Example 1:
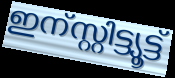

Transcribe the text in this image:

ഇന്സ്റ്റിട്ട്യൂട്ട്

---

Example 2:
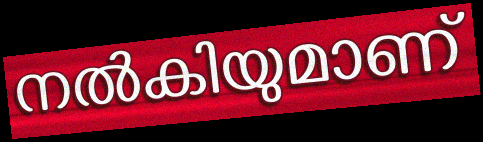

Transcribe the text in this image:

നൽകിയുമാണ്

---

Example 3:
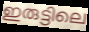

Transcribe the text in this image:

ഇരുട്ടിലെ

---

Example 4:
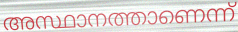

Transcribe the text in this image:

അസ്ഥാനത്താണെന്ന്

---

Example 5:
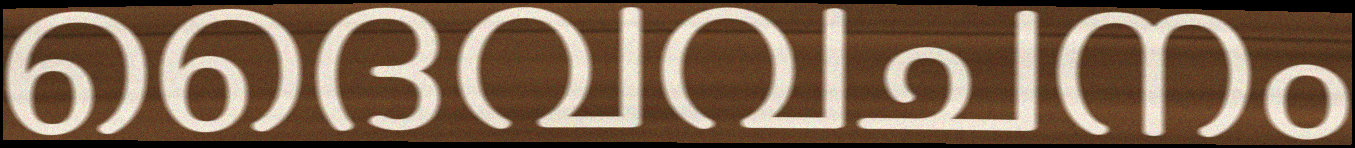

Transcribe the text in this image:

ദൈവവചനം